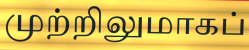
முற்றிலுமாகப்